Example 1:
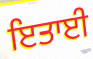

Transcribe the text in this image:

ਇਤਾਈ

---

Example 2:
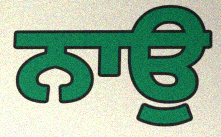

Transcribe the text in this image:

ਨਾਉ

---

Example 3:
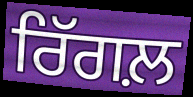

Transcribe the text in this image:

ਰਿੱਗਲ਼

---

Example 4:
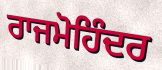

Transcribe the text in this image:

ਰਾਜਮੋਹਿੰਦਰ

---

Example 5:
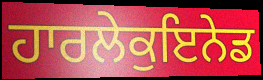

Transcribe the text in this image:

ਹਾਰਲੇਕੁਇਨੇਡ